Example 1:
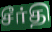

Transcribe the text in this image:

சீர்தி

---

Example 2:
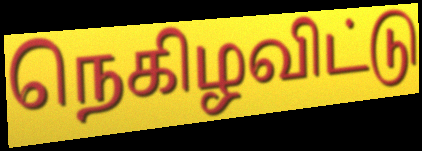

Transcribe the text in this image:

நெகிழவிட்டு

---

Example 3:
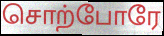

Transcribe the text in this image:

சொற்போரே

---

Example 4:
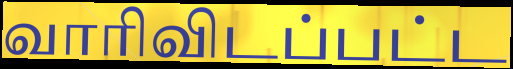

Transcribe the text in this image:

வாரிவிடப்பட்ட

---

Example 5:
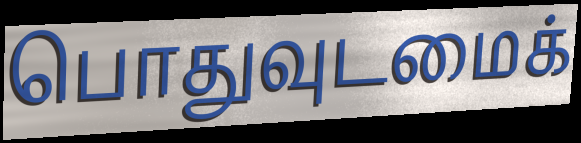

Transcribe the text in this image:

பொதுவுடமைக்